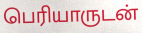
பெரியாருடன்